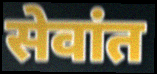
सेवांत